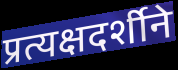
प्रत्यक्षदर्शीने